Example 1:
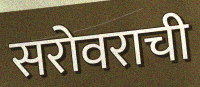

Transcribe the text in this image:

सरोवराची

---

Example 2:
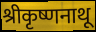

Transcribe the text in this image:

श्रीकृष्णनाथू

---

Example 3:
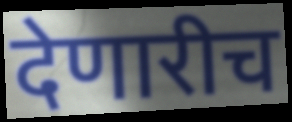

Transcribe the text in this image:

देणारीच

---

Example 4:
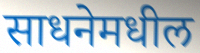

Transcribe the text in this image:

साधनेमधील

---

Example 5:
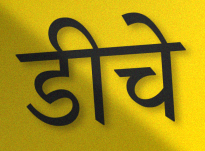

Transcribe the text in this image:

डीचे